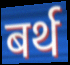
बर्थ